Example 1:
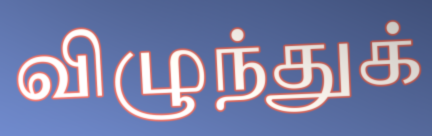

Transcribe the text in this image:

விழுந்துக்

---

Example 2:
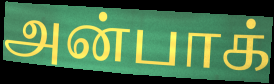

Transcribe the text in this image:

அன்பாக்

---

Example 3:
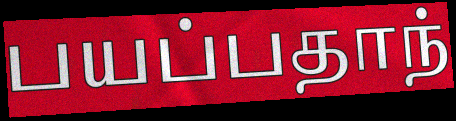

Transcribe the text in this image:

பயப்பதாந்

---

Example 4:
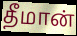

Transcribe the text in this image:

தீமான்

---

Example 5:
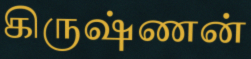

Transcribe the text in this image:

கிருஷ்ணன்